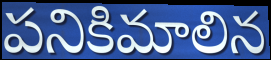
పనికిమాలిన